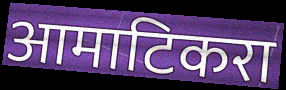
आमाटिकरा